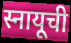
स्नायूची